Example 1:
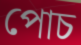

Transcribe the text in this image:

পোচ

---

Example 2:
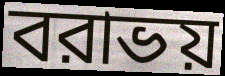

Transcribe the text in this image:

বরাভয়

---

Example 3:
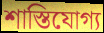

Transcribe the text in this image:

শাস্তিযোগ্য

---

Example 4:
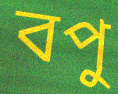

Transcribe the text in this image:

বপু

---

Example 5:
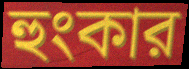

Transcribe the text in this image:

হুংকার